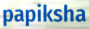
papiksha